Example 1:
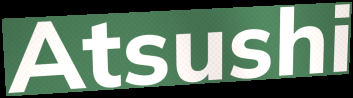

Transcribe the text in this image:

Atsushi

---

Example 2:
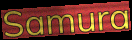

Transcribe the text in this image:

Samura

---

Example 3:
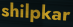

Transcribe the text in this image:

shilpkar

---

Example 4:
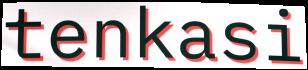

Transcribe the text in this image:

tenkasi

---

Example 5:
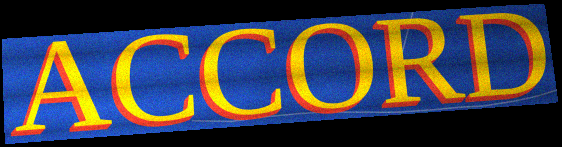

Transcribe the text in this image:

ACCORD